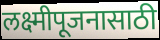
लक्ष्मीपूजनासाठी